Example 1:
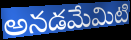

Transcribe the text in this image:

అనడమేమిటి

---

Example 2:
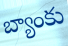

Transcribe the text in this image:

బ్యాంకు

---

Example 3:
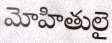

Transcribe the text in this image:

మోహితులై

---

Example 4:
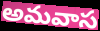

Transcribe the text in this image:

అమవాస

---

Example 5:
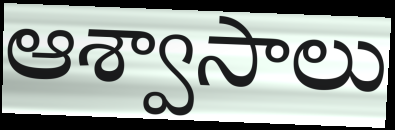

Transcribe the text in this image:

ఆశ్వాసాలు